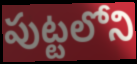
పుట్టలోని